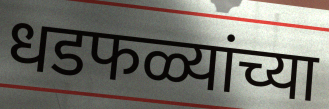
धडफळ्यांच्या